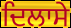
ਦਿਲਾਸੇ